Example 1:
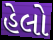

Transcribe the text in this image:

હેલો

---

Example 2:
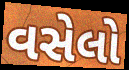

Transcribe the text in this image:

વસેલો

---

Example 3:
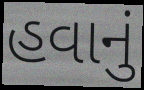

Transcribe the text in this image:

હવાનું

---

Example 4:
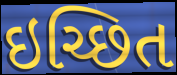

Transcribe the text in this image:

ઇચ્છિત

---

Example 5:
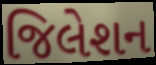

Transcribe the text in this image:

જિલેશન